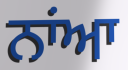
ਨਾਂਆ